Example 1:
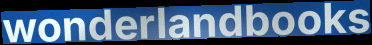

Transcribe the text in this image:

wonderlandbooks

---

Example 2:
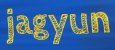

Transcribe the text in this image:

jagyun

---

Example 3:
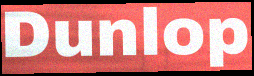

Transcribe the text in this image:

Dunlop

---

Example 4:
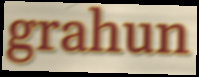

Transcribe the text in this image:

grahun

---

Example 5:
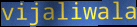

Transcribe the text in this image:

vijaliwala